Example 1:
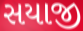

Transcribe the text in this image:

સયાજી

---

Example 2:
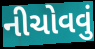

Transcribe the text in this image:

નીચોવવું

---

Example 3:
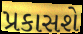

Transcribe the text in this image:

પ્રકાસશે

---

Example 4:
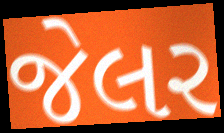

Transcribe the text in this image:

જેલર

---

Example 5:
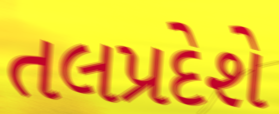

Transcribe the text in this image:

તલપ્રદેશે